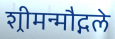
श्रीमन्मौद्गले